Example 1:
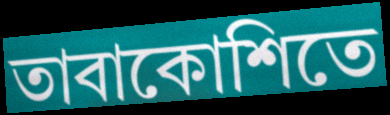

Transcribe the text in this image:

তাবাকোশিতে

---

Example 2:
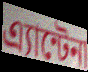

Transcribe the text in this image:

এ্যান্টেনা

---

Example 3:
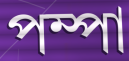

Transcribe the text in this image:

পম্পা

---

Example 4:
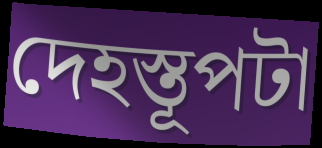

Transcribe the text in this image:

দেহস্তূপটা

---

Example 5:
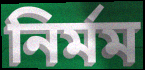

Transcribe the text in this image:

নির্মম